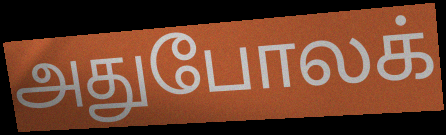
அதுபோலக்